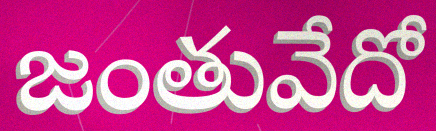
జంతువేదో